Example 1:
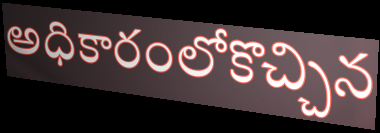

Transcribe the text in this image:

అధికారంలోకొచ్చిన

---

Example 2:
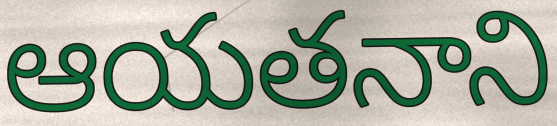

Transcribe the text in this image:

ఆయతనాని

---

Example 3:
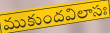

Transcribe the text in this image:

ముకుందవిలాసః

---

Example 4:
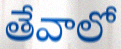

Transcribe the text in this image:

తేవాలో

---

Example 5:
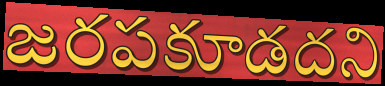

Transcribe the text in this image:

జరపకూడదని